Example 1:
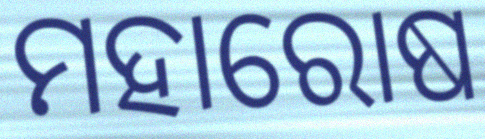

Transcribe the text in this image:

ମହାରୋଷ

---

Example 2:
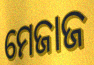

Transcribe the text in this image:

ମେଜାଜ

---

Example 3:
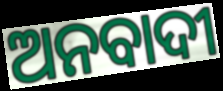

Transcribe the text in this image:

ଅନବାଦୀ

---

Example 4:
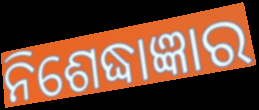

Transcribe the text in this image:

ନିଶେଦ୍ଧାଜ୍ଞାର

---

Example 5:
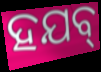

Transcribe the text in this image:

ହଯବ୍